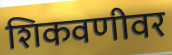
शिकवणीवर